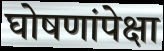
घोषणांपेक्षा